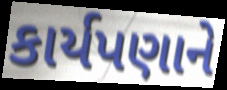
કાર્યપણાને